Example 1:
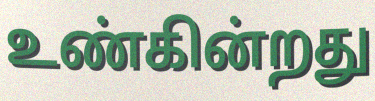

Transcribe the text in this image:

உண்கின்றது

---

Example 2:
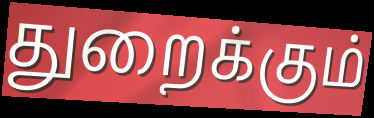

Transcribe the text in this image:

துறைக்கும்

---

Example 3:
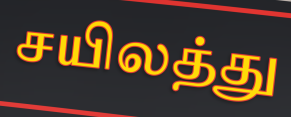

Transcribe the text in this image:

சயிலத்து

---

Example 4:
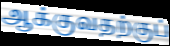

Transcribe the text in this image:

ஆக்குவதற்குப்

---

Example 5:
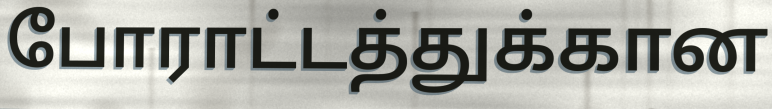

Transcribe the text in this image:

போராட்டத்துக்கான